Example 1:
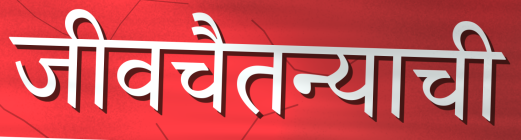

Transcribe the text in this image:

जीवचैतन्याची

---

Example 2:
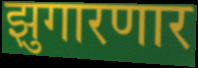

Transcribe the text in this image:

झुगारणार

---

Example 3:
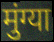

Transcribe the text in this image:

मुंग्या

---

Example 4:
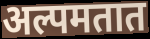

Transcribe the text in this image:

अल्पमतात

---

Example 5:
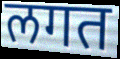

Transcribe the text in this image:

लगत